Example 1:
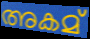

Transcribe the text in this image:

അകമ്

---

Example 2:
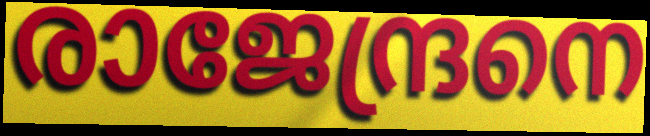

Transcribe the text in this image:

രാജേന്ദ്രനെ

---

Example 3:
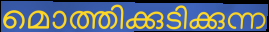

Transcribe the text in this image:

മൊത്തിക്കുടിക്കുന്ന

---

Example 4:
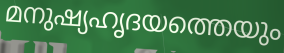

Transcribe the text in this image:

മനുഷ്യഹൃദയത്തെയും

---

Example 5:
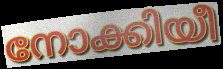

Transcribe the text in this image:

നോക്കിയീ